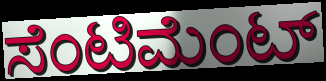
ಸೆಂಟಿಮೆಂಟ್